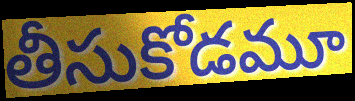
తీసుకోడమూ